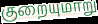
குறையுமாறு